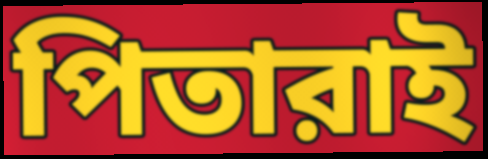
পিতারাই